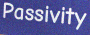
Passivity